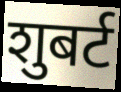
शुबर्ट